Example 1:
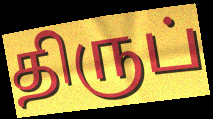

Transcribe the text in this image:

திருப்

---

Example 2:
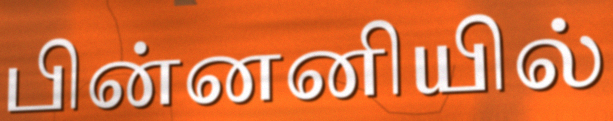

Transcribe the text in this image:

பின்னனியில்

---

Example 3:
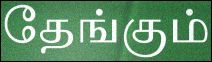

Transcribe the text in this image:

தேங்கும்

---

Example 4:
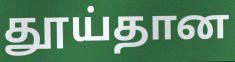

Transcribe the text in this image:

தூய்தான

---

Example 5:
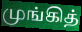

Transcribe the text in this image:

முங்கித்